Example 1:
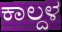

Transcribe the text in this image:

ಕಾಲ್ದಳ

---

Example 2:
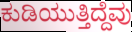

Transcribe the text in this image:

ಕುಡಿಯುತ್ತಿದ್ದೆವು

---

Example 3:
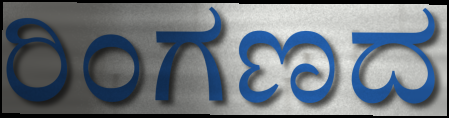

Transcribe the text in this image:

ರಿಂಗಣದ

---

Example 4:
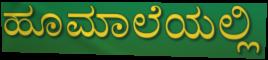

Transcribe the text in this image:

ಹೂಮಾಲೆಯಲ್ಲಿ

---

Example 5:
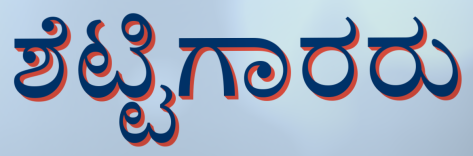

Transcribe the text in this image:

ಶೆಟ್ಟಿಗಾರರು